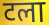
टला